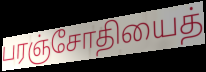
பரஞ்சோதியைத்